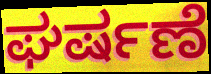
ಘರ್ಷಣೆ